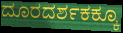
ದೂರದರ್ಶಕಕ್ಕೂ